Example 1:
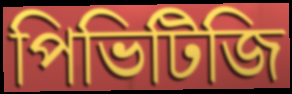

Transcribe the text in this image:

পিভিটিজি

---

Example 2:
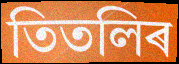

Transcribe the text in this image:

তিতলিৰ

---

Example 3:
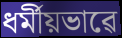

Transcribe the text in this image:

ধৰ্মীয়ভাৱে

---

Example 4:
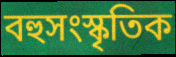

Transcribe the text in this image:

বহুসংস্কৃতিক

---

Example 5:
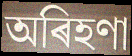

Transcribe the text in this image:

অৰিহণা